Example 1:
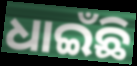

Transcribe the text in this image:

ଧାଇଁଛି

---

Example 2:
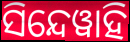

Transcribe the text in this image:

ସିନ୍ଦେୱାହି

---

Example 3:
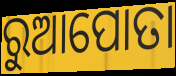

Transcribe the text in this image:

ରୁଆପୋତା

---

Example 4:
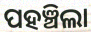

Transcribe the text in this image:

ପହଞ୍ଚିଲା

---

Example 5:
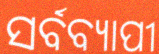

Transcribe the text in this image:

ସର୍ବବ୍ୟାପୀ